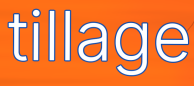
tillage